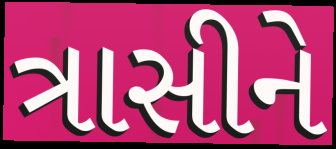
ત્રાસીને